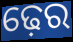
ଢ଼େର